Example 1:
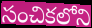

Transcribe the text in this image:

సంచికలోని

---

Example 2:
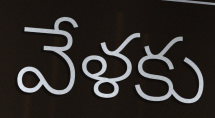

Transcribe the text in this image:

వేళకు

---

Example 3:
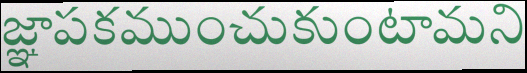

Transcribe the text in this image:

జ్ఞాపకముంచుకుంటామని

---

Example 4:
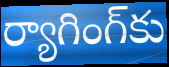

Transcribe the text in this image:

ర్యాగింగ్‌కు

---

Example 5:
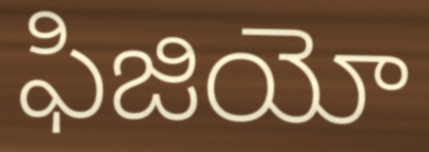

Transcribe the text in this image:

ఫిజియో